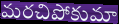
మరచిపోకుమా